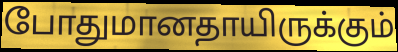
போதுமானதாயிருக்கும்